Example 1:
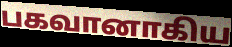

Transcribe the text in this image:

பகவானாகிய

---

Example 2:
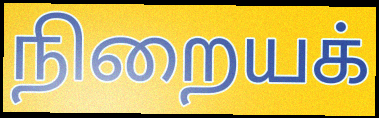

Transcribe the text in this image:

நிறையக்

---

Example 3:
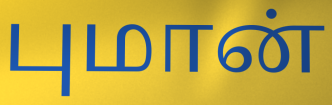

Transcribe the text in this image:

புமான்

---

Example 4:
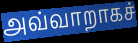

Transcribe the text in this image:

அவ்வாறாகச்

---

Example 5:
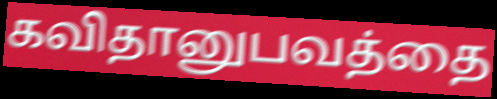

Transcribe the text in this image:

கவிதானுபவத்தை